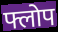
फ्लोप